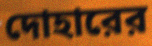
দোহারের